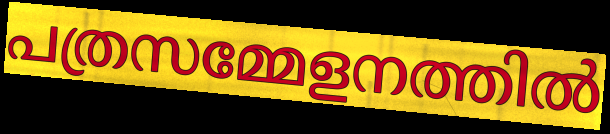
പത്രസമ്മേളനത്തിൽ